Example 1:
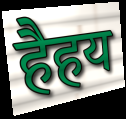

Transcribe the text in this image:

हैहय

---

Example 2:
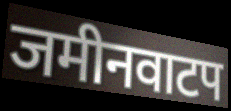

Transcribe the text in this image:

जमीनवाटप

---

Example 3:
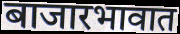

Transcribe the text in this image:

बाजारभावात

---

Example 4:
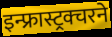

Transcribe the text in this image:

इन्फ्रास्ट्रक्चरने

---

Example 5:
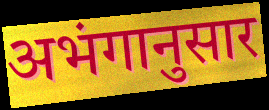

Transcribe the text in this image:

अभंगानुसार